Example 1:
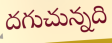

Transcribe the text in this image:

దగుచున్నది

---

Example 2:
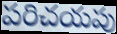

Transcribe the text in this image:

పరిచయపు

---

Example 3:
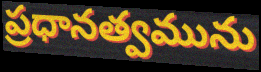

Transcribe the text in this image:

ప్రధానత్వమును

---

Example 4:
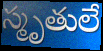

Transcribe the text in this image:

స్మృతులే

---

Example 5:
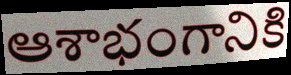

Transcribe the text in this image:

ఆశాభంగానికి